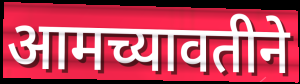
आमच्यावतीने